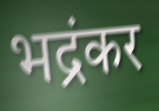
भद्रंकर